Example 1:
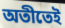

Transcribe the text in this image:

অতীতেই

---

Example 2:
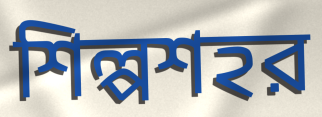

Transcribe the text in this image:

শিল্পশহর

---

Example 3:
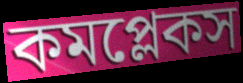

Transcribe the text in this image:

কমপ্লেকস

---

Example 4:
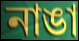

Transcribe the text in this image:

নাঙা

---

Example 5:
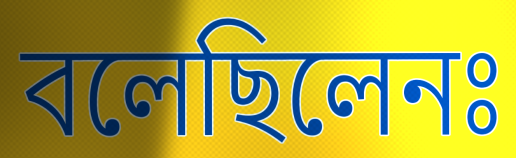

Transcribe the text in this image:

বলেছিলেনঃ